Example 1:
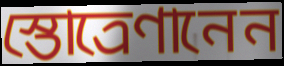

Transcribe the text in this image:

স্তোত্রেণানেন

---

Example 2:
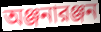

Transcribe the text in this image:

অঞ্জনারঞ্জন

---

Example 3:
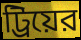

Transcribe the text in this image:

ট্রিয়ের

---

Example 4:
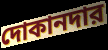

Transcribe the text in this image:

দোকানদার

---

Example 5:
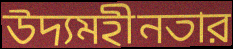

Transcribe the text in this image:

উদ্যমহীনতার